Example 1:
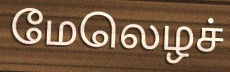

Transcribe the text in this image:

மேலெழச்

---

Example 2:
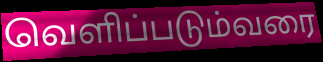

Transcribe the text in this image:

வெளிப்படும்வரை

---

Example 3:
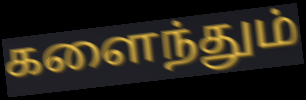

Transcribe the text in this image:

களைந்தும்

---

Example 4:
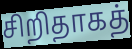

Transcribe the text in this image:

சிறிதாகத்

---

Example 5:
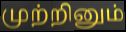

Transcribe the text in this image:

முற்றினும்